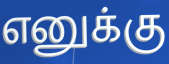
எனுக்கு